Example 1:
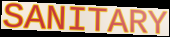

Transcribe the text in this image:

SANITARY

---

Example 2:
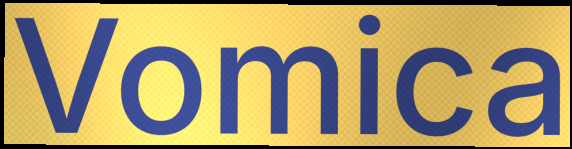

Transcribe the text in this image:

Vomica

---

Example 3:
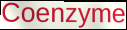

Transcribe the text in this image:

Coenzyme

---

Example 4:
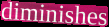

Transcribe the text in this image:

diminishes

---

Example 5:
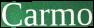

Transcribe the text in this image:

Carmo